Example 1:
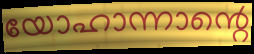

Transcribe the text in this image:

യോഹാന്നാന്റെ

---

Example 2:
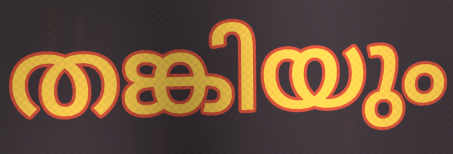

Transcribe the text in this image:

തങ്കിയും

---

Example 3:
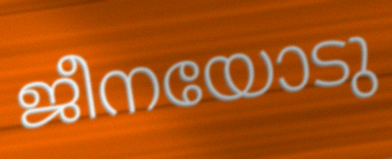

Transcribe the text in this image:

ജീനയോടു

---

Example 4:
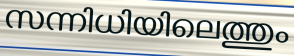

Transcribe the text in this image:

സന്നിധിയിലെത്തും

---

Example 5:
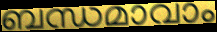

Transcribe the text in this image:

ബന്ധമാവാം